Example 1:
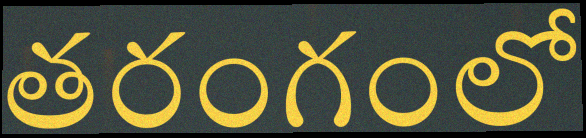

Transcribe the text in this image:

తరంగంలో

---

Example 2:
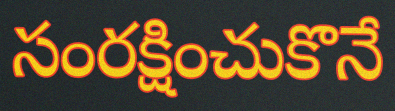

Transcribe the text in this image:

సంరక్షించుకొనే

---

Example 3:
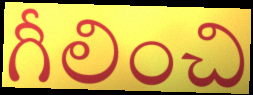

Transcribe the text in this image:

గీలించి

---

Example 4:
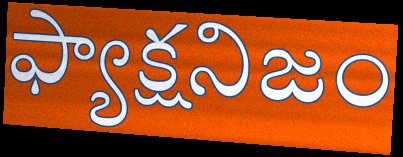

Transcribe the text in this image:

ఫ్యాక్షనిజం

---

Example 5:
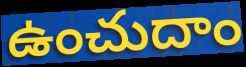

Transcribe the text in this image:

ఉంచుదాం